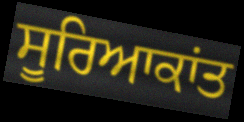
ਸੂਰਿਆਕਾਂਤ